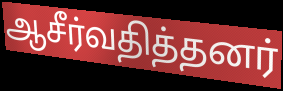
ஆசீர்வதித்தனர்